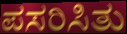
ಪಸರಿಸಿತು